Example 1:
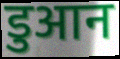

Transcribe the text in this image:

डुआन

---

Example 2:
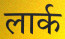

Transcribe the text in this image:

लार्क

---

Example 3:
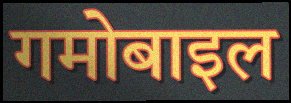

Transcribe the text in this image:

गमोबाइल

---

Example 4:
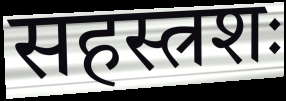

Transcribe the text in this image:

सहस्त्रशः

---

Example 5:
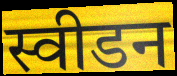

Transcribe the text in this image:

स्वीडन